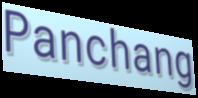
Panchang